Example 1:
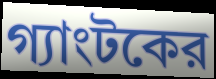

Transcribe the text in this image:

গ্যাংটকের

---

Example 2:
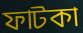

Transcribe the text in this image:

ফাটকা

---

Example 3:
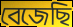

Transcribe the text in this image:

বেজেছি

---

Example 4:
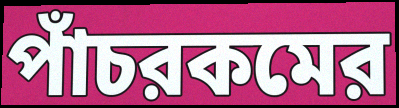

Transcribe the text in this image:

পাঁচরকমের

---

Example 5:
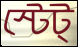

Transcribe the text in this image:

স্টেট্